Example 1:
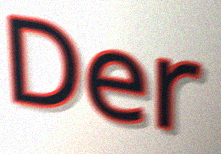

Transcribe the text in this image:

Der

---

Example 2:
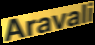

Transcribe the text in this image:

Aravali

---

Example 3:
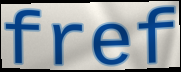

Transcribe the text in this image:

fref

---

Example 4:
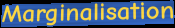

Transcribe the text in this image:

Marginalisation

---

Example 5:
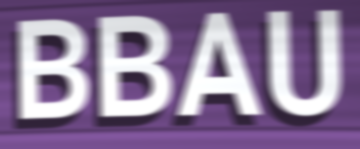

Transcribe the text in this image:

BBAU